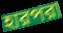
হারপরা